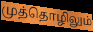
முத்தொழிலும்